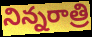
నిన్నరాత్రి